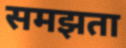
समझता